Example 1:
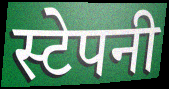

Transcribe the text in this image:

स्टेपनी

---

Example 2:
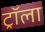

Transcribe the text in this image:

ट्रॉला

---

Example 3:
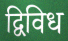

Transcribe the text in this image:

द्विविध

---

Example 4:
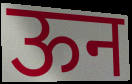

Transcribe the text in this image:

ऊन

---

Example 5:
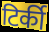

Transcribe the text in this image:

टिर्की